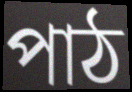
পাঠ